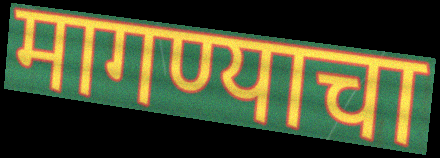
मागण्याचा